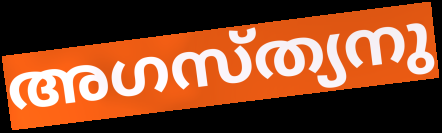
അഗസ്ത്യനു